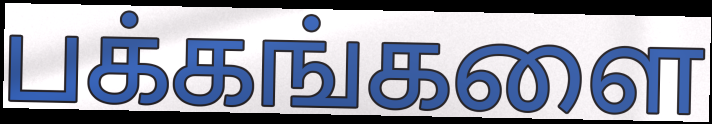
பக்கங்களை